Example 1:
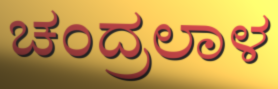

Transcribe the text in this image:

ಚಂದ್ರಲಾಳ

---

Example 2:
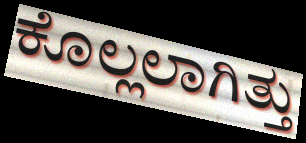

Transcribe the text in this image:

ಕೊಲ್ಲಲಾಗಿತ್ತು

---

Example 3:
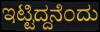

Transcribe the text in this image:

ಇಟ್ಟಿದ್ದನೆಂದು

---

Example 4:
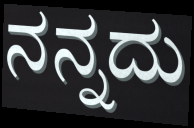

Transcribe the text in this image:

ನನ್ನದು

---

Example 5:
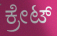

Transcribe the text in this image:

ಕ್ರೇಟ್